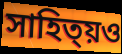
সাহিত্য়ও